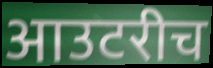
आउटरीच